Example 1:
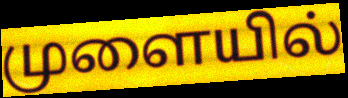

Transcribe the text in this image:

முளையில்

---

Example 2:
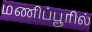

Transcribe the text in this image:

மணிப்பூரில்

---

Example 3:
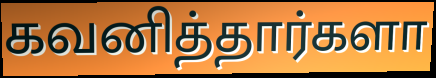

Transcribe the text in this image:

கவனித்தார்களா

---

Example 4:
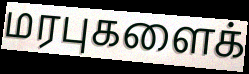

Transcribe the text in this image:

மரபுகளைக்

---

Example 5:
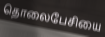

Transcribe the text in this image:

தொலைபேசியை